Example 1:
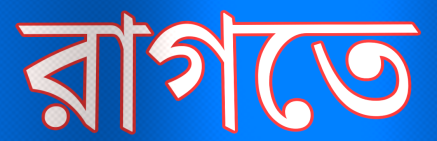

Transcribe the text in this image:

রাগতে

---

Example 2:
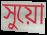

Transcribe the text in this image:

সুয়ো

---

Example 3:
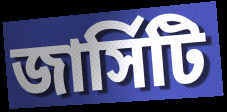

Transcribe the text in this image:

জার্সিটি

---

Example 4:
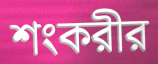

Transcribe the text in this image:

শংকরীর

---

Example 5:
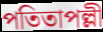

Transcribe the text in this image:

পতিতাপল্লী